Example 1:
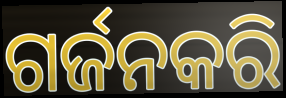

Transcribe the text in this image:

ଗର୍ଜନକରି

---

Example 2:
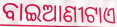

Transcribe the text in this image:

ବାଇଆଣୀଟାଏ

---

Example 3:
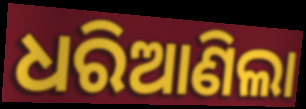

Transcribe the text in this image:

ଧରିଆଣିଲା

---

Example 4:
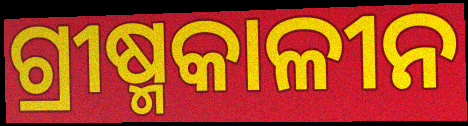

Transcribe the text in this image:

ଗ୍ରୀଷ୍ମକାଳୀନ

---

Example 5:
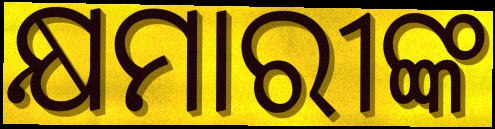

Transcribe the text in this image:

କ୍ଷମାରୀଙ୍କ